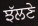
ਝੱਲਣੇ